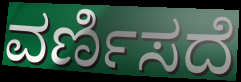
ವರ್ಣಿಸದೆ